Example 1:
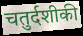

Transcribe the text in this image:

चतुर्दशीकी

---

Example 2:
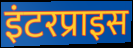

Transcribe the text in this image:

इंटरप्राइस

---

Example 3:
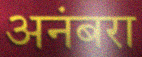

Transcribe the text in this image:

अनंबरा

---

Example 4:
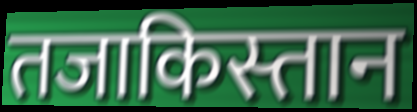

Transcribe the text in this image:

तजाकिस्‍तान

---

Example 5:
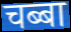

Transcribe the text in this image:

चब्बा